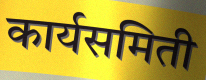
कार्यसमिती